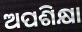
ଅପଶିକ୍ଷା